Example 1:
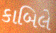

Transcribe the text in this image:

કાબિલે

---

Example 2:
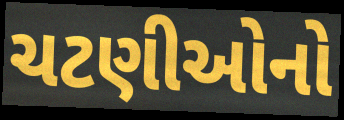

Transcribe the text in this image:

ચટણીઓનો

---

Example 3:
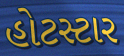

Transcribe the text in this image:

હોટસ્ટાર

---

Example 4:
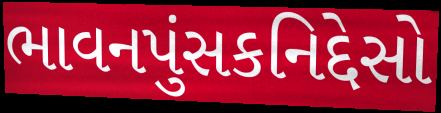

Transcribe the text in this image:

ભાવનપુંસકનિદ્દેસો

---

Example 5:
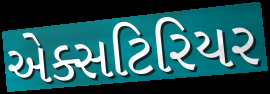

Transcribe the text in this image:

એક્સટિરિયર